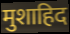
मुशाहिद